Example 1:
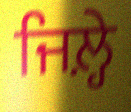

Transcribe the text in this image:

ਜਿਲ਼੍ਹੇ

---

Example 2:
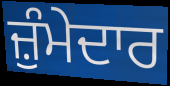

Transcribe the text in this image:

ਜ਼ੁੰਮੇਦਾਰ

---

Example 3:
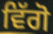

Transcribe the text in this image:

ਵਿੱਗੋ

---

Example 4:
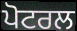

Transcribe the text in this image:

ਪੋਟਰਲ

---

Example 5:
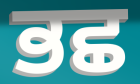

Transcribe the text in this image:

ਭਛ